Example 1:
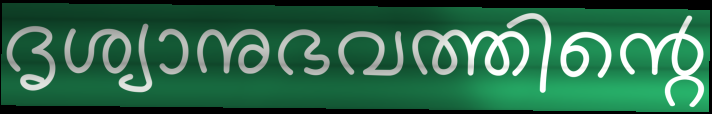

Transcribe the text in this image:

ദൃശ്യാനുഭവത്തിന്റെ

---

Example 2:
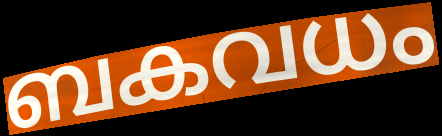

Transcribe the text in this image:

ബകവധം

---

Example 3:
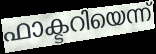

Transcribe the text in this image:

ഫാക്ടറിയെന്ന്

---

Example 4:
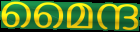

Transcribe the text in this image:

മൈന്ദ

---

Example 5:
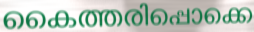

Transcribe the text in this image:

കൈത്തരിപ്പൊക്കെ